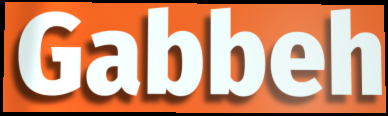
Gabbeh